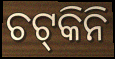
ଚଟ୍‍କିନି